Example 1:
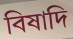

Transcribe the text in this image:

বিষাদি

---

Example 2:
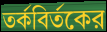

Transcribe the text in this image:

তর্কবির্তকের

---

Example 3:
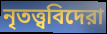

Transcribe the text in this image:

নৃতত্ত্ববিদেরা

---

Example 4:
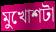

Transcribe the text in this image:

মুখোশটা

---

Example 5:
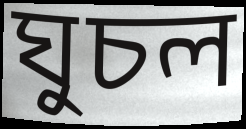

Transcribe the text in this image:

ঘুচল